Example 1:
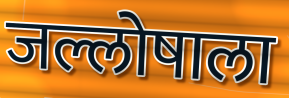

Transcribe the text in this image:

जल्लोषाला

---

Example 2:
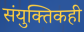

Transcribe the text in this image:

संयुक्तिकही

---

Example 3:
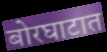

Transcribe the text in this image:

बोरघाटात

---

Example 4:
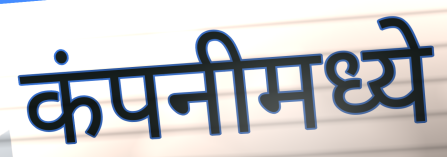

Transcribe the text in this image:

कंपनीमध्ये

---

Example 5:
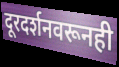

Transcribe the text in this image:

दूरदर्शनवरूनही